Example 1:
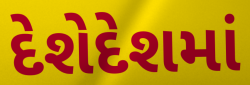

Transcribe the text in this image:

દેશેદેશમાં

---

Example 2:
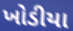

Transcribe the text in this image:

ખોડીયા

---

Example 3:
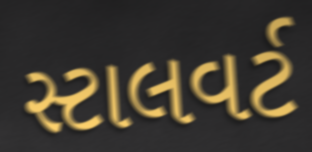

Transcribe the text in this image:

સ્ટાલવર્ટ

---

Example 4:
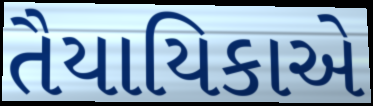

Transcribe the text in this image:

તૈયાયિકાએ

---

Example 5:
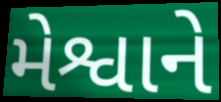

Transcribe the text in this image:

મેશ્વાને